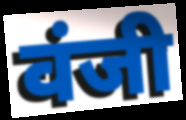
वंजी